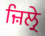
ਜ਼ਿਲ੍ਰੇ